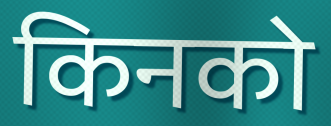
किनको